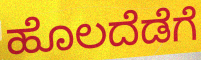
ಹೊಲದೆಡೆಗೆ